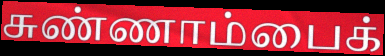
சுண்ணாம்பைக்